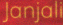
Janjali